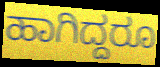
ಹಾಗಿದ್ದರೂ